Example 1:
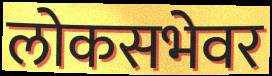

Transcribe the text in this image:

लोकसभेवर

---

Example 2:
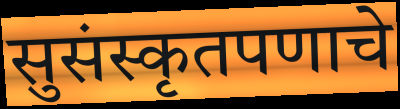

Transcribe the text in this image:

सुसंस्कृतपणाचे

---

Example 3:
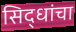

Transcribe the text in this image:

सिद्धांचा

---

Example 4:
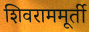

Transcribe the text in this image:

शिवराममूर्ती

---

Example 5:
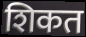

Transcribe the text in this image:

शिकत